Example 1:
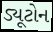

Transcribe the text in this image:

ડ્યૂટોન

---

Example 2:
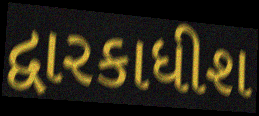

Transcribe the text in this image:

દ્વારકાધીશ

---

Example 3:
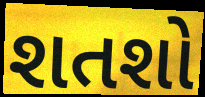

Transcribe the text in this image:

શતશો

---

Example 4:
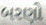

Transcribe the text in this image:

બરણો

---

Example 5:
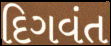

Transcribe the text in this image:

દિગવંત